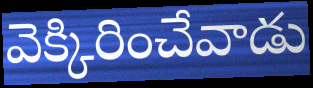
వెక్కిరించేవాడు